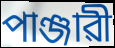
পাঞ্জাৱী